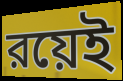
রয়েই